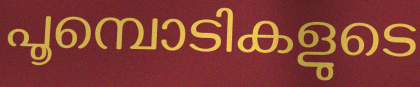
പൂമ്പൊടികളുടെ